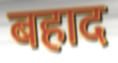
बहाद